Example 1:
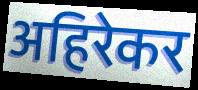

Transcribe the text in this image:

अहिरेकर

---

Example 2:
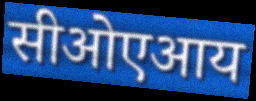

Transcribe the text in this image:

सीओएआय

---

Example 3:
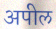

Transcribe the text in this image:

अपील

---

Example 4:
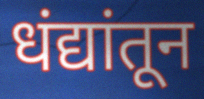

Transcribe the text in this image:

धंद्यांतून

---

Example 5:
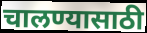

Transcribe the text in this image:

चालण्यासाठी